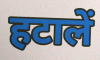
हटालें